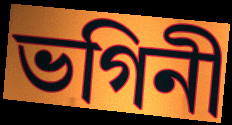
ভগিনী